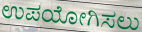
ಉಪಯೋಗಿಸಲು